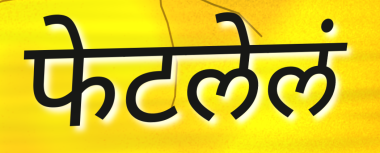
फेटलेलं